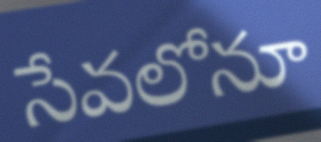
సేవలోనూ